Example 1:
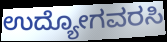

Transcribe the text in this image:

ಉದ್ಯೋಗವರಸಿ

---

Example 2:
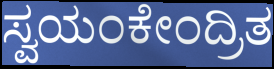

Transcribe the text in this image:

ಸ್ವಯಂಕೇಂದ್ರಿತ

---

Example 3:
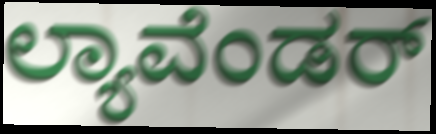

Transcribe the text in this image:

ಲ್ಯಾವೆಂಡರ್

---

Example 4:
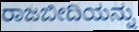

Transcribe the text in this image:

ರಾಜಬೀದಿಯನ್ನು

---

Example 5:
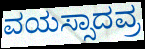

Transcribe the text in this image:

ವಯಸ್ಸಾದವ್ರ